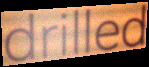
drilled